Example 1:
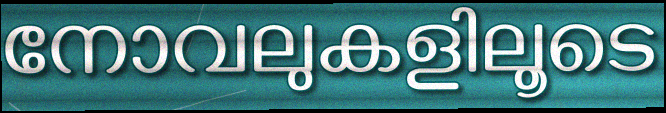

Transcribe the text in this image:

നോവലുകളിലൂടെ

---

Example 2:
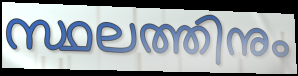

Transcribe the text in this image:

സ്ഥലത്തിനും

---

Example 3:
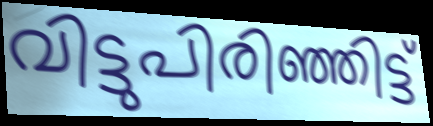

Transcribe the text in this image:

വിട്ടുപിരിഞ്ഞിട്ട്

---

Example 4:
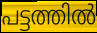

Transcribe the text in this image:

പട്ടത്തിൽ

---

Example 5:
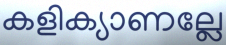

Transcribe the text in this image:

കളിക്യാണല്ലേ